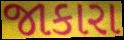
જાકારા